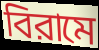
বিরামে